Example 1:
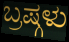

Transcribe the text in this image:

ಬ್ರಷ್ಗಳು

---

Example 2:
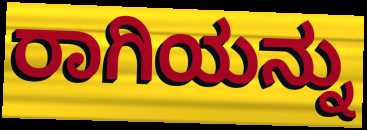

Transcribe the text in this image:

ರಾಗಿಯನ್ನು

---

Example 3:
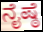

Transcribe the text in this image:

ನೈಷ್ಠೆ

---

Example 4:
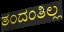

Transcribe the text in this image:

ತಂದಂತಿಲ್ಲ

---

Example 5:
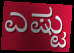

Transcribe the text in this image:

ಎಷ್ಟು